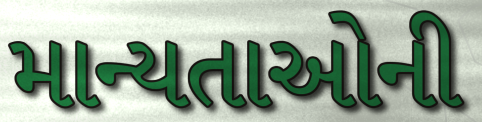
માન્યતાઓની